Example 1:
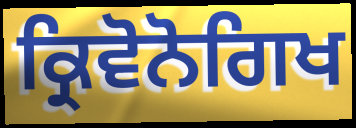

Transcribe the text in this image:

ਕ੍ਰਿਵੋਨੋਗਿਖ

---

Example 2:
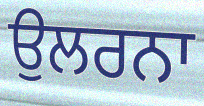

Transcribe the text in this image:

ਉਲਰਨਾ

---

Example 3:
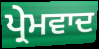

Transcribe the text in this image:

ਪ੍ਰੇਮਵਾਦ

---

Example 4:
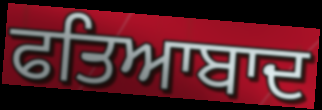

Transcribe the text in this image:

ਫਤਿਆਬਾਦ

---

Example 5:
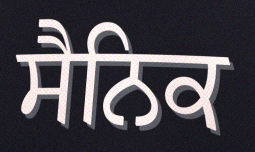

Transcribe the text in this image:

ਸੈਨਿਕ